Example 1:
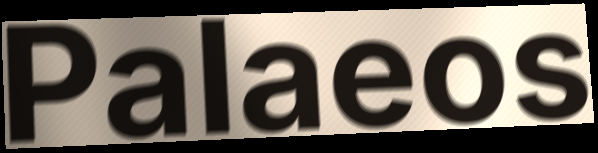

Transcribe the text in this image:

Palaeos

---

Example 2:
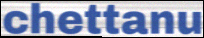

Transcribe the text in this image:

chettanu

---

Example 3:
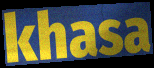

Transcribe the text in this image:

khasa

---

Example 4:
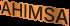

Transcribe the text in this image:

AHIMSA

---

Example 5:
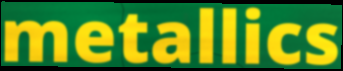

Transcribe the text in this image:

metallics